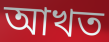
আখত